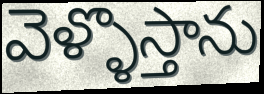
వెళ్ళొస్తాను